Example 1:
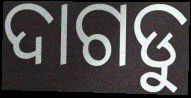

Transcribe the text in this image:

ଦାଗଡୁ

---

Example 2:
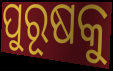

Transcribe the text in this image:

ପୁରୂଷକୁ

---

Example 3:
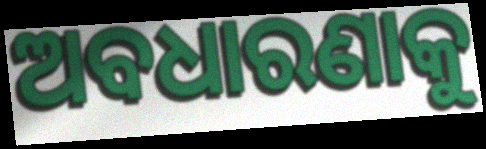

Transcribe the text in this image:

ଅବଧାରଣାକୁ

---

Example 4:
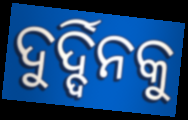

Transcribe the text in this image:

ଦୁର୍ଦ୍ଦିନକୁ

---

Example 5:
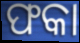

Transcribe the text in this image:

ଫକା